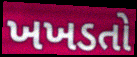
ખખડતો